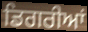
ਡਿਗਰੀਆਂ